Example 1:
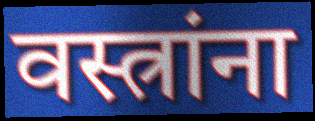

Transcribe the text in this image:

वस्त्रांना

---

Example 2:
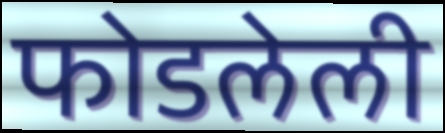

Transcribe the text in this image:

फोडलेली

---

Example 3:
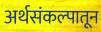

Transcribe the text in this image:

अर्थसंकल्पातून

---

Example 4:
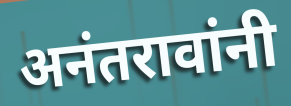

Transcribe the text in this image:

अनंतरावांनी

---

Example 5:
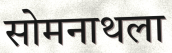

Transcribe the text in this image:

सोमनाथला